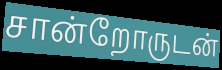
சான்றோருடன்